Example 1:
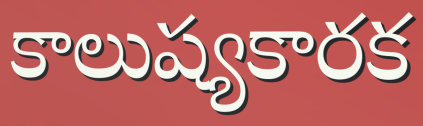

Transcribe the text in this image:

కాలుష్యకారక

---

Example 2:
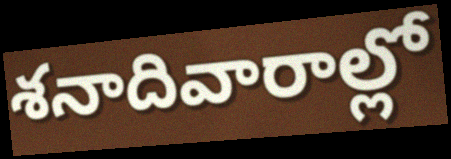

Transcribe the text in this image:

శనాదివారాల్లో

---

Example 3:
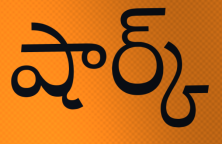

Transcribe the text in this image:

షార్క్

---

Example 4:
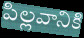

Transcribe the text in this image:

పిల్లవానికి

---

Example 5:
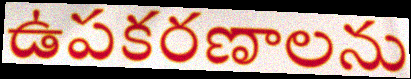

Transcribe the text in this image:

ఉపకరణాలను